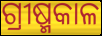
ଗ୍ରୀଷ୍ମକାଳ